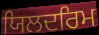
ਯਿਲਦਰਿਮ